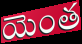
యెంత